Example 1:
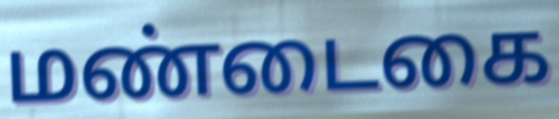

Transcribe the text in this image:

மண்டைகை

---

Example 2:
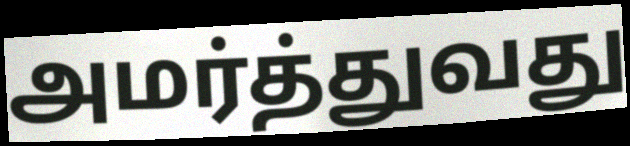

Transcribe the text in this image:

அமர்த்துவது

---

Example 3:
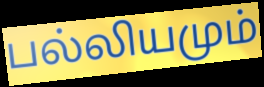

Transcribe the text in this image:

பல்லியமும்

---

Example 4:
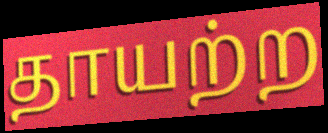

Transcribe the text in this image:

தாயற்ற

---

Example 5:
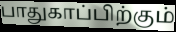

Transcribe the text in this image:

பாதுகாப்பிற்கும்